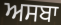
ਅਸਬਾ